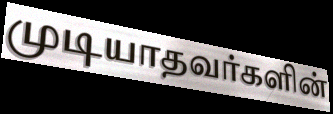
முடியாதவர்களின்